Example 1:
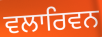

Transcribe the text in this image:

ਵਲਾਰਿਵਨ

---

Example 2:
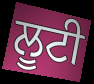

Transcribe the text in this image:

ਲੂਟੀ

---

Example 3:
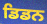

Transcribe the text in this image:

ਡਿਡਨ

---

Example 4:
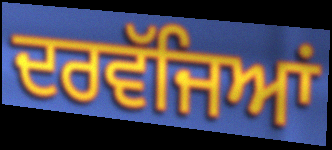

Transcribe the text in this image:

ਦਰਵੱਜਿਆਂ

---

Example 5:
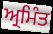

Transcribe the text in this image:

ਅ੍ਰਮਿੰਤ